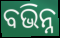
ବଭିନ୍ନ